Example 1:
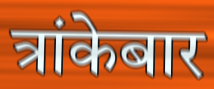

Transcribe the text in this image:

त्रांकेबार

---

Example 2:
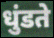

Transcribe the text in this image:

धुंडते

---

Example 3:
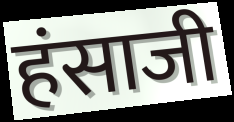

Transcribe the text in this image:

हंसाजी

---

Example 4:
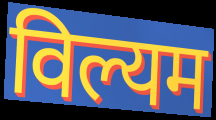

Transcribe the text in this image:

विल्यम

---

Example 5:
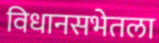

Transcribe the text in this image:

विधानसभेतला